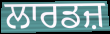
ਲਾਰਡਜ਼